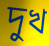
দুখ